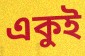
একুই